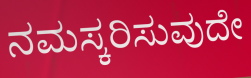
ನಮಸ್ಕರಿಸುವುದೇ